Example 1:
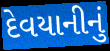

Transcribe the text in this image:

દેવયાનીનું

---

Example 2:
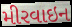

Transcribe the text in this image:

મીરવાઇન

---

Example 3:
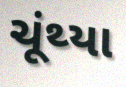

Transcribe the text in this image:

ચૂંથ્યા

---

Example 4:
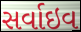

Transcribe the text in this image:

સર્વાઇવ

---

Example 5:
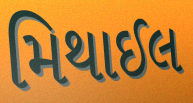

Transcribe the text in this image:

મિથાઈલ